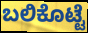
ಬಲಿಕೊಟ್ಟೆ